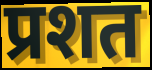
प्रशत